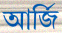
আর্জি